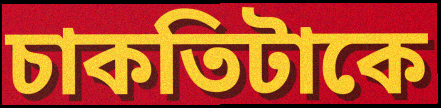
চাকতিটাকে